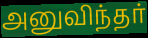
அனுவிந்தர்